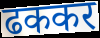
ढककर